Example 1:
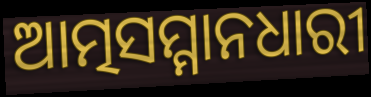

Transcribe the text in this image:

ଆତ୍ମସମ୍ମାନଧାରୀ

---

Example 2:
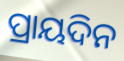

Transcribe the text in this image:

ପ୍ରାୟଦିନ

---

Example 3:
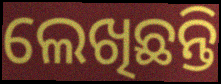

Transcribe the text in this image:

ଲେଖିଛନ୍ତି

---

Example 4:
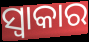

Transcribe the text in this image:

ସ୍ୱାକାର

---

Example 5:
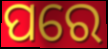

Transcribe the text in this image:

ପରେ